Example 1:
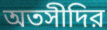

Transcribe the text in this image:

অতসীদির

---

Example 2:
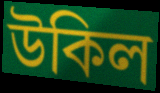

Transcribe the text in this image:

উকিল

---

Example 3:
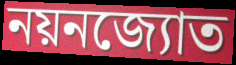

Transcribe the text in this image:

নয়নজ্যোত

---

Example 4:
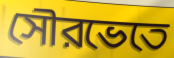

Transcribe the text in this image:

সৌরভেতে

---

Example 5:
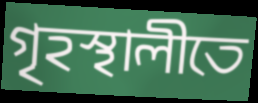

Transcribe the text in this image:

গৃহস্থালীতে